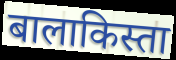
बालाकिस्ता